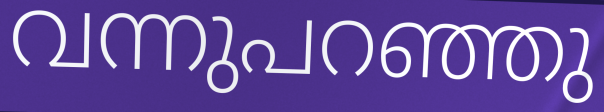
വന്നുപറഞ്ഞു